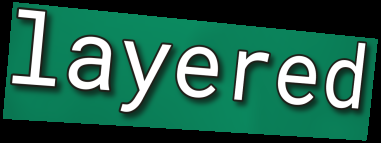
layered